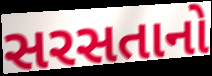
સરસતાનો